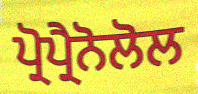
ਪ੍ਰੋਪ੍ਰੈਨੋਲੋਲ